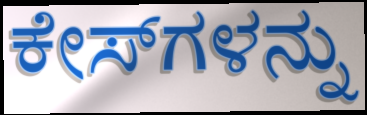
ಕೇಸ್‌ಗಳನ್ನು